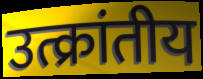
उत्क्रांतीय